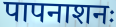
पापनाशनः